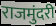
राजमुंदरी